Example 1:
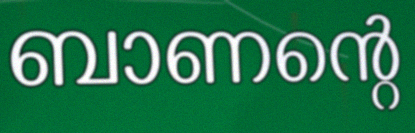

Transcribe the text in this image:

ബാണന്റെ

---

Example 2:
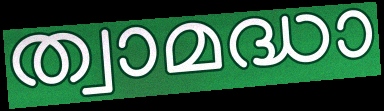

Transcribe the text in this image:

ത്വാമദ്ധാ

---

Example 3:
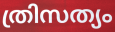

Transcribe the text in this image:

ത്രിസത്യം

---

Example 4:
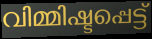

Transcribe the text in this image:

വിമ്മിഷ്ടപ്പെട്ട്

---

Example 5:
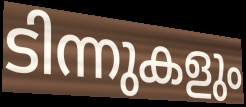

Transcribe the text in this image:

ടിന്നുകളും